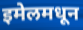
इमेलमधून